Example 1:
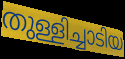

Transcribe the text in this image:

തുള്ളിച്ചാടിയ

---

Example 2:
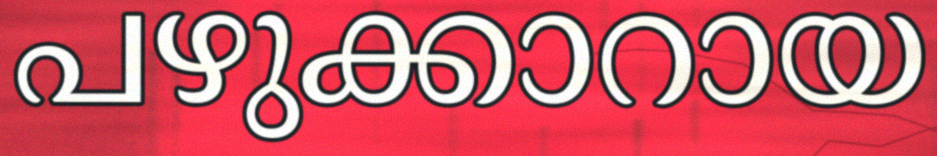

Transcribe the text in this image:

പഴുക്കാറായ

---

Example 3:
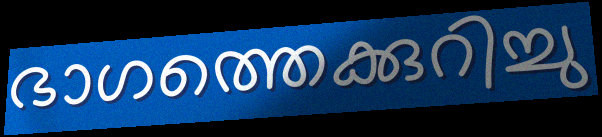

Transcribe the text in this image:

ഭാഗത്തെക്കുറിച്ചു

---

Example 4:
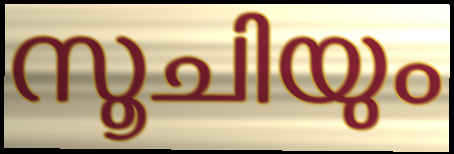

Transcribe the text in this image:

സൂചിയും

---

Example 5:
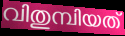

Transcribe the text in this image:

വിതുമ്പിയത്